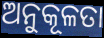
ଅନୁକୂଳତା